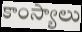
కాంస్యాలు